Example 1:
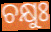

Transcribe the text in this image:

ଚକ୍ଷୁଃ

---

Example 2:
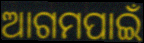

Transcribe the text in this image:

ଆଗମପାଇଁ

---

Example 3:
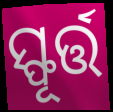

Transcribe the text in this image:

ସ୍ଫୂର୍ତ୍ତ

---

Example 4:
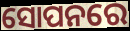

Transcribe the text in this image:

ସୋପନରେ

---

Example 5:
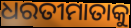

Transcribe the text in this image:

ଧରତୀମାତାକୁ